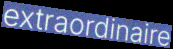
extraordinaire